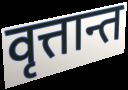
वृत्तान्त